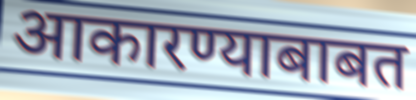
आकारण्याबाबत